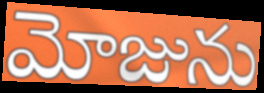
మోజును